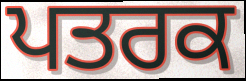
ਪਤਰਕ